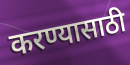
करण्यासाठी